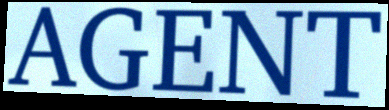
AGENT